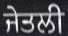
ਜੇਤਲੀ